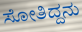
ಸೋತಿದ್ದನು